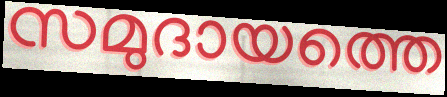
സമുദായത്തെ